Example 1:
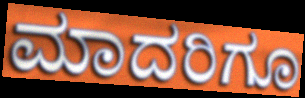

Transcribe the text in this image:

ಮಾದರಿಗೂ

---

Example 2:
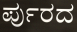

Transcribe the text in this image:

ರ್ಪುರದ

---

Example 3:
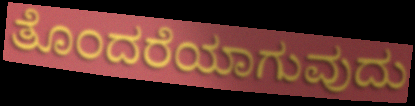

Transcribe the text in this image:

ತೊಂದರೆಯಾಗುವುದು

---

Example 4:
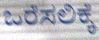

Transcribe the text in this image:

ಒರೆಸಲಿಕ್ಕೆ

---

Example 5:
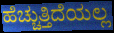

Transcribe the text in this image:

ಹೆಚ್ಚುತ್ತಿದೆಯಲ್ಲ